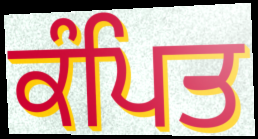
ਕੰਪਿਤ